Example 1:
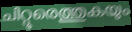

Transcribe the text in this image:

ചിറ്റൂരെത്തുകയും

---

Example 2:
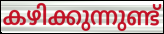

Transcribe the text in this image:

കഴിക്കുന്നുണ്ട്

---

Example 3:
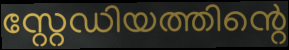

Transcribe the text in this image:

സ്റ്റേഡിയത്തിന്റെ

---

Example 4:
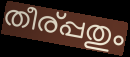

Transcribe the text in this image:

തീര്പ്പതും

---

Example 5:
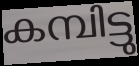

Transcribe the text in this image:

കമ്പിട്ടു